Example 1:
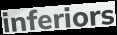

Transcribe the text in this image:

inferiors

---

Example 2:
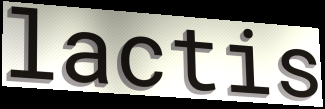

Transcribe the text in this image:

lactis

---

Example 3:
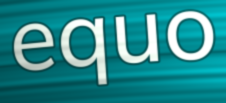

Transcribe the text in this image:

equo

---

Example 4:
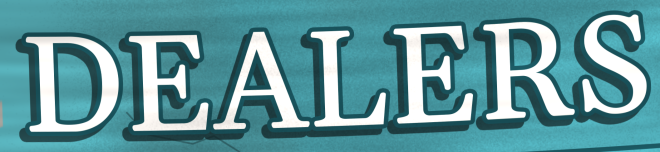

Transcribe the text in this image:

DEALERS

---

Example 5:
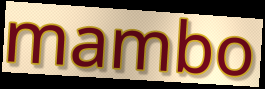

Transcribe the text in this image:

mambo